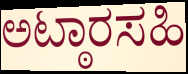
ಅಟ್ಠಾರಸಹಿ